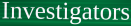
Investigators